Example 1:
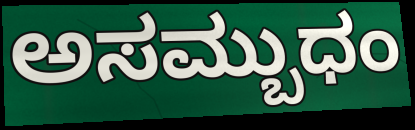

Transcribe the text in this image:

ಅಸಮ್ಬುಧಂ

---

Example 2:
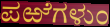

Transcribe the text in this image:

ಪಱೆಗಳುಂ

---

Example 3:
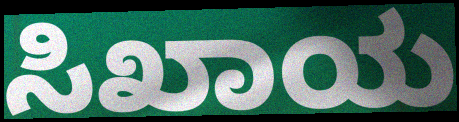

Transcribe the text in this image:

ಸಿಖಾಯ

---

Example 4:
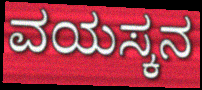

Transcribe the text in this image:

ವಯಸ್ಕನ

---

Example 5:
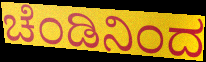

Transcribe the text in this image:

ಚೆಂಡಿನಿಂದ